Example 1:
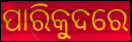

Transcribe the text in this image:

ପାରିକୁଦରେ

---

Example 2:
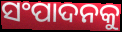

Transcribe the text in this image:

ସଂପାଦନକୁ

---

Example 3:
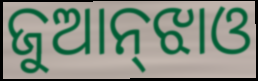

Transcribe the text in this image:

ଜୁଆନ୍‌ଝାଓ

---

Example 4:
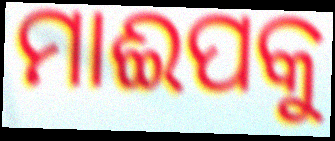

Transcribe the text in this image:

ମାଈପକୁ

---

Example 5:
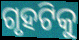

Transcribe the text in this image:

ଗୃହଟିକୁ